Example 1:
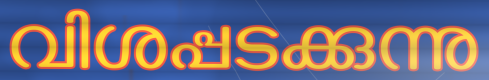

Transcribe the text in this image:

വിശപ്പടക്കുന്നു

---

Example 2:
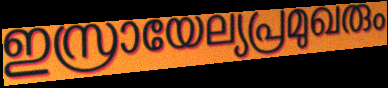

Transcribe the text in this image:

ഇസ്രായേല്യപ്രമുഖരും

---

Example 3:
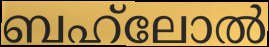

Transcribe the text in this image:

ബഹ്‌ലോൽ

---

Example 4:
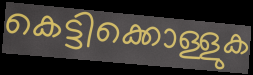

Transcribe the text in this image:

കെട്ടിക്കൊള്ളുക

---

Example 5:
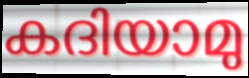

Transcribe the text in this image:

കദിയാമു